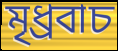
মৃধ্রবাচ